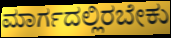
ಮಾರ್ಗದಲ್ಲಿರಬೇಕು